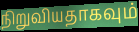
நிறுவியதாகவும்